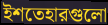
ইশতেহারগুলো